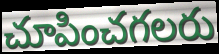
చూపించగలరు